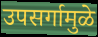
उपसर्गामुळे